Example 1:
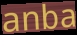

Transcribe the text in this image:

anba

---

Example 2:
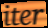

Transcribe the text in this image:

iter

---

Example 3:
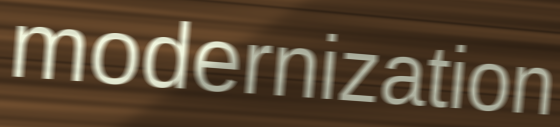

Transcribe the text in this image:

modernization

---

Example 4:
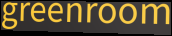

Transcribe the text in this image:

greenroom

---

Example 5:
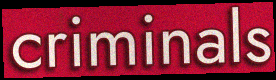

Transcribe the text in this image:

criminals